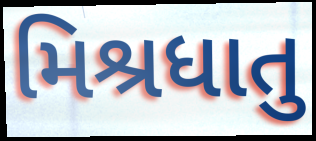
મિશ્રધાતુ